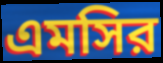
এমসির